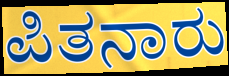
ಪಿತನಾರು